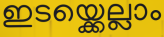
ഇടയ്ക്കെല്ലാം